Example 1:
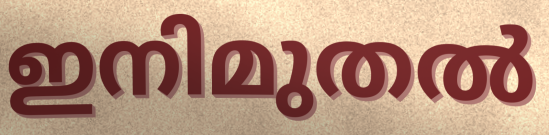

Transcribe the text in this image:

ഇനിമുതൽ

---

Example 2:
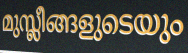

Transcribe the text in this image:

മുസ്ലീങ്ങളുടെയും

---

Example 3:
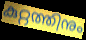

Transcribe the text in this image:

കുറ്റത്തിനും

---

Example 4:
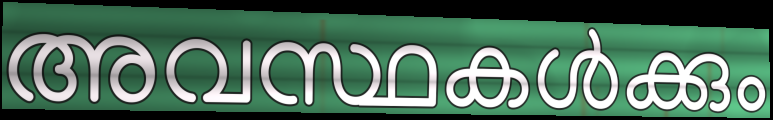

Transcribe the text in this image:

അവസ്ഥകൾക്കും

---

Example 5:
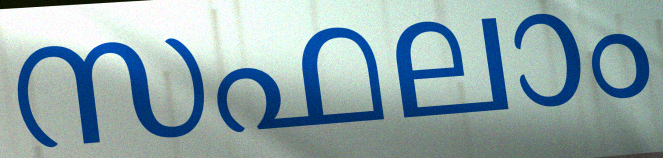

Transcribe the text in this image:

സഫലാം